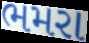
ભમરા